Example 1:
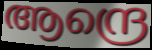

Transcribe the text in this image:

ആന്ദ്രെ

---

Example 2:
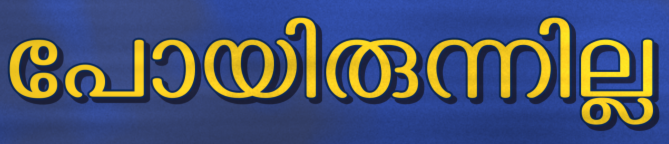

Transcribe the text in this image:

പോയിരുന്നില്ല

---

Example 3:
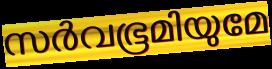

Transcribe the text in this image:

സർവഭൂമിയുമേ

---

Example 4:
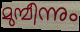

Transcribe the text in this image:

മുമ്പീന്നും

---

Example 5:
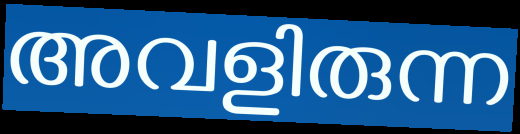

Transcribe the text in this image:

അവളിരുന്ന